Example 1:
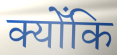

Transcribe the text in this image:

क्योँकि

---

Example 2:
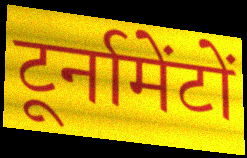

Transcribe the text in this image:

टूर्नामेंटों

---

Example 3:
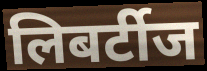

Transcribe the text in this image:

लिबर्टीज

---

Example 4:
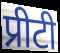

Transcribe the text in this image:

प्रीटी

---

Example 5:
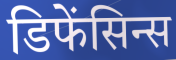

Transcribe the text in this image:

डिफेंसिन्स